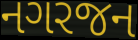
નગરજન